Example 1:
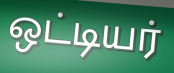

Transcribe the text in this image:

ஒட்டியர்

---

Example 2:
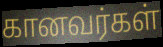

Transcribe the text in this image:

கானவர்கள்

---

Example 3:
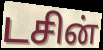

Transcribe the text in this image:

டசின்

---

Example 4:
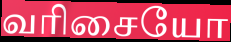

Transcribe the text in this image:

வரிசையோ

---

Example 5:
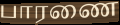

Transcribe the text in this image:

பாரணை